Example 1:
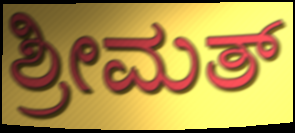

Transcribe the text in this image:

ಶ್ರೀಮತ್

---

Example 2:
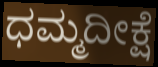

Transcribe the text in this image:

ಧಮ್ಮದೀಕ್ಷೆ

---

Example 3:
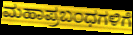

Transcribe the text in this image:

ಮಹಾಪ್ರಬಂಧಗಳಿಗೆ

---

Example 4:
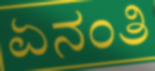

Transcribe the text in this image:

ಏನಂತಿ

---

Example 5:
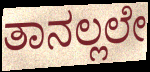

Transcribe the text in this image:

ತಾನಲ್ಲಲೇ